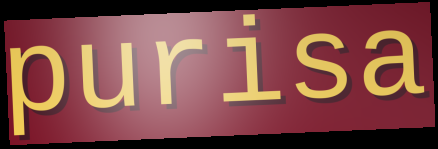
purisa